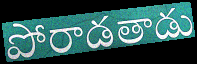
పోరాడతాడు